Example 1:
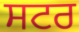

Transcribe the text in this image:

ਸਟਰ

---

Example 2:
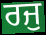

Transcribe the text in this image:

ਰਜੁ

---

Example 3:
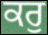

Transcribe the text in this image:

ਕਰੁ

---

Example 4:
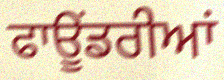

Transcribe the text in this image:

ਫਾਊਂਡਰੀਆਂ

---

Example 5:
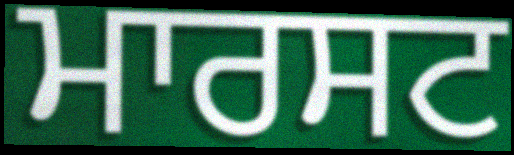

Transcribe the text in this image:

ਮਾਰਸਟ